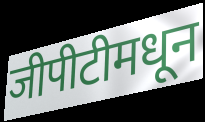
जीपीटीमधून